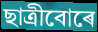
ছাত্ৰীবোৰে